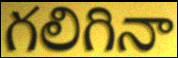
గలిగినా